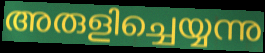
അരുളിച്ചെയ്യന്നു